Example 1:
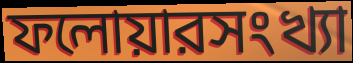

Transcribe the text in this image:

ফলোয়ারসংখ্যা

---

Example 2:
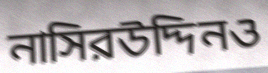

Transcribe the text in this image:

নাসিরউদ্দিনও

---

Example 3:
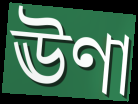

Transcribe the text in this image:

ঊণা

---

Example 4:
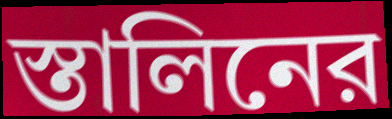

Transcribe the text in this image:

স্তালিনের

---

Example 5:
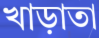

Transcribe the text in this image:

খাড়াতা